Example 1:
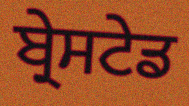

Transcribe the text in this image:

ਬ੍ਰੇਸਟੇਡ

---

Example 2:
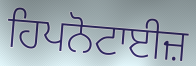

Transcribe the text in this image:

ਹਿਪਨੋਟਾਈਜ਼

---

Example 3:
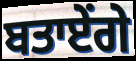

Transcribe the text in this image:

ਬਤਾਏਂਗੇ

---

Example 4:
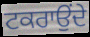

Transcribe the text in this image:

ਟਕਰਾਉਂਦੇ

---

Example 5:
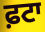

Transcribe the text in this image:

ਫ਼ਟਾ